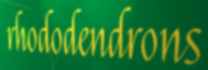
rhododendrons